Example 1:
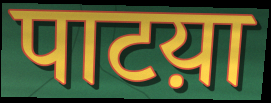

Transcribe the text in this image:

पाटय़ा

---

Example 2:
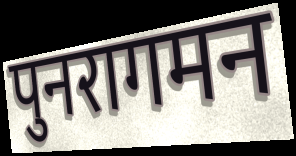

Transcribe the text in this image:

पुनरागमन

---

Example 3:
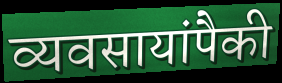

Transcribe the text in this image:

व्यवसायांपैकी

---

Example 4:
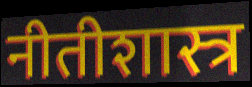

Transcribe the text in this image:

नीतीशास्त्र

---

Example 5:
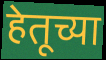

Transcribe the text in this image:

हेतूच्या